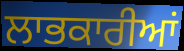
ਲਾਭਕਾਰੀਆਂ